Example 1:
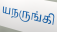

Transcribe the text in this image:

யநருங்கி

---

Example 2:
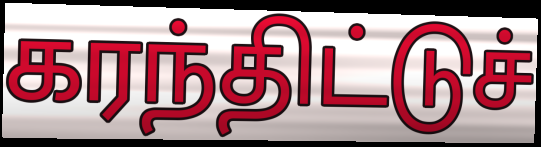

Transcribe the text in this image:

கரந்திட்டுச்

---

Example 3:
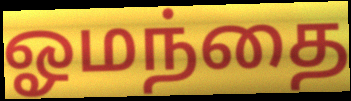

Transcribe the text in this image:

ஓமந்தை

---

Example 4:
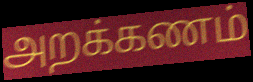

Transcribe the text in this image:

அறக்கணம்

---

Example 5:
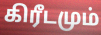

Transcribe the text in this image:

கிரீடமும்